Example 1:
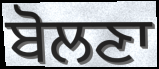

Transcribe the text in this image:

ਬੋਲਣਾ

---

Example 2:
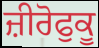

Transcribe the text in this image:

ਜ਼ੀਰੋਫੁਕੂ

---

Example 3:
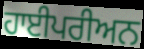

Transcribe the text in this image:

ਹਾਈਪਰੀਅਨ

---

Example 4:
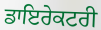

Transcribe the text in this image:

ਡਾਇਰੇਕਟਰੀ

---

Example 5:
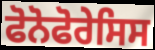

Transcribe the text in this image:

ਫੋਨੋਫੋਰੇਸਿਸ